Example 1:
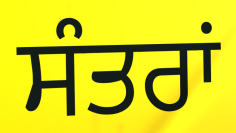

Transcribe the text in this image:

ਸੰਤਰਾਂ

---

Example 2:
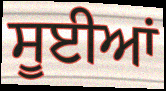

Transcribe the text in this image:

ਸੂਈਆਂ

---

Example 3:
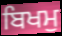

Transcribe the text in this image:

ਬਿਖਮੁ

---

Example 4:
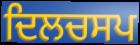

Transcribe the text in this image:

ਦਿਲਚਸਪ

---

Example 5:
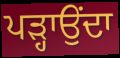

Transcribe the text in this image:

ਪੜ੍ਹਾਉਂਦਾ